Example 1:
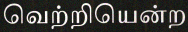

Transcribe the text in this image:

வெற்றியென்ற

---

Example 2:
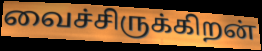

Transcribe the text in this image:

வைச்சிருக்கிறன்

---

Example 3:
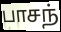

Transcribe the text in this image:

பாசந்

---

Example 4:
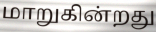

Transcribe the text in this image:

மாறுகின்றது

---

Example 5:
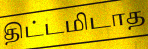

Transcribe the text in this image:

திட்டமிடாத